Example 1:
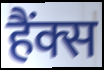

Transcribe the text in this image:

हैंक्‍स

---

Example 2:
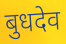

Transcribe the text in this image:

बुधदेव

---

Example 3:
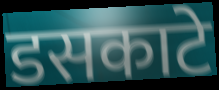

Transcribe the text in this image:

डसकाटे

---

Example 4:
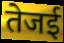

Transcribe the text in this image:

तेजई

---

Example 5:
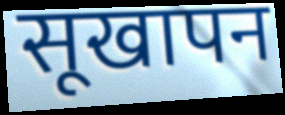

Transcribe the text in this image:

सूखापन